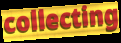
collecting